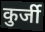
कुर्जी